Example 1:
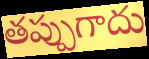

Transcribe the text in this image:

తప్పుగాదు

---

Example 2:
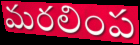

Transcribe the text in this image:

మరలింప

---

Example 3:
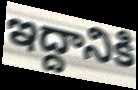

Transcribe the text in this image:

ఇద్దానికి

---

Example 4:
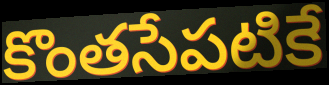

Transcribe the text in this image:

కొంతసేపటికే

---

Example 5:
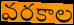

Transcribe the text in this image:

వరకాల